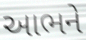
આભને